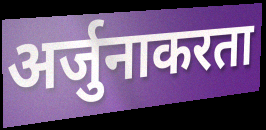
अर्जुनाकरता